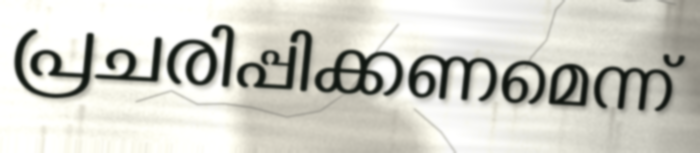
പ്രചരിപ്പിക്കണമെന്ന്